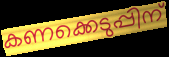
കണക്കെടുപ്പിന്